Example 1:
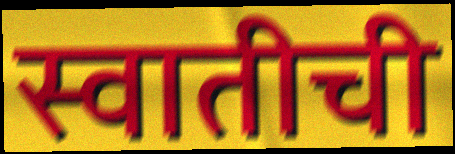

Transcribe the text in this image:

स्वातीची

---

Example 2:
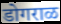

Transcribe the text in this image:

डोगराळ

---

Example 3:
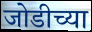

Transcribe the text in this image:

जोडीच्या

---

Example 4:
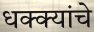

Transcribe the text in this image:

धक्क्यांचे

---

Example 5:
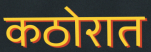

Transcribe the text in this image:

कठोरात